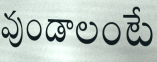
వుండాలంటే